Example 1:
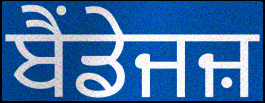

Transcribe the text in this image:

ਬੈਂਡੇਜਜ਼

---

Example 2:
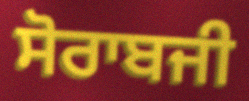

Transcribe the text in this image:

ਸੋਰਾਬਜੀ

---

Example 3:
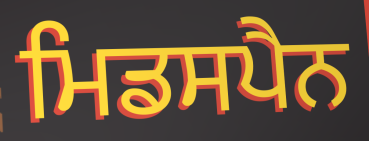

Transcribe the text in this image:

ਮਿਡਸਪੈਨ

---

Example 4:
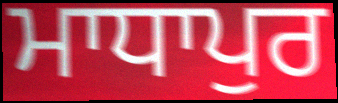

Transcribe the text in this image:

ਮਾਧਾਪੁਰ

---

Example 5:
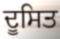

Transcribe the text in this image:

ਦੂਸਿਤ